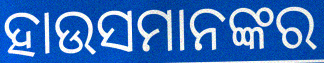
ହାଉସମାନଙ୍କର